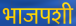
भाजपशी